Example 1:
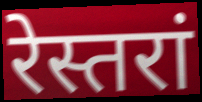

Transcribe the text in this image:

रेस्तरां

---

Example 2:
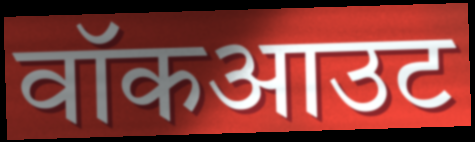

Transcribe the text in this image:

वॉकआउट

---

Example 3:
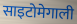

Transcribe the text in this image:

साइटोमेगाली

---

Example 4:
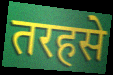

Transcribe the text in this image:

तरहसे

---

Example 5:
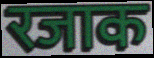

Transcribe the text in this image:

रजाक